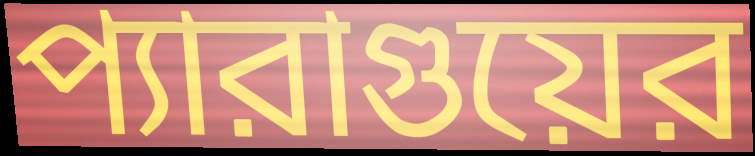
প্যারাগুয়ের